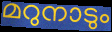
മറുനാടും